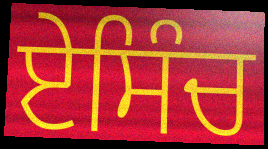
ਏਸਿੰਚ